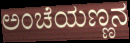
ಅಂಚೆಯಣ್ಣನ